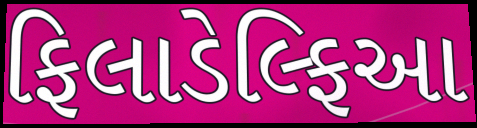
ફિલાડેલ્ફિઆ